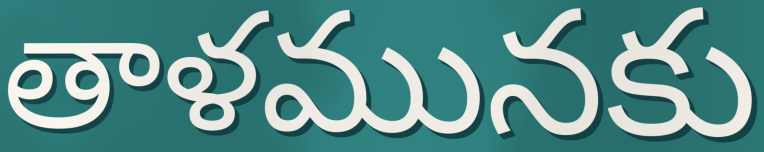
తాళమునకు